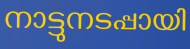
നാട്ടുനടപ്പായി